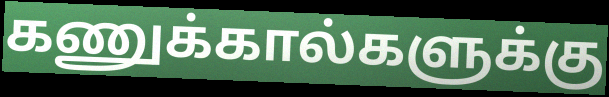
கணுக்கால்களுக்கு